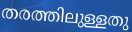
തരത്തിലുള്ളതു